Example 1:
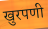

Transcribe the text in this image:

खुरपणी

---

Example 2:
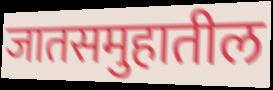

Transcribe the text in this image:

जातसमुहातील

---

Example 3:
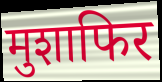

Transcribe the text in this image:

मुशाफिर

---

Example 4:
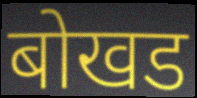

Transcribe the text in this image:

बोखड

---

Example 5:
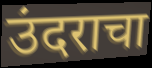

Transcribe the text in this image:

उंदराचा